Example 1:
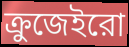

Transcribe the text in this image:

ক্রুজেইরো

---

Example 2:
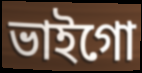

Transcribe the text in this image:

ভাইগো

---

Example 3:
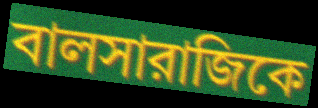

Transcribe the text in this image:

বালসারাজিকে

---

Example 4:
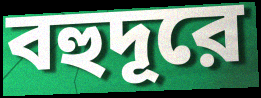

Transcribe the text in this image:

বহুদূরে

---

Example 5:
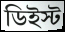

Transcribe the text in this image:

ডিইস্ট